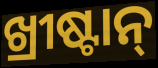
ଖ୍ରୀଷ୍ଟାନ୍